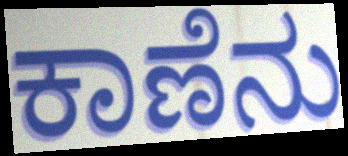
ಕಾಣೆನು